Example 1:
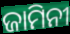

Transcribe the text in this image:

ଜାମିନୀ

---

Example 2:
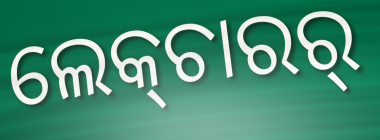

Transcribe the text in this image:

ଲେକ୍‍ଚାରର୍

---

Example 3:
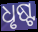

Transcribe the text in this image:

ଧୃଷ୍ଟ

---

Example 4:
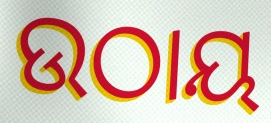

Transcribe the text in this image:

ଉଠାୟ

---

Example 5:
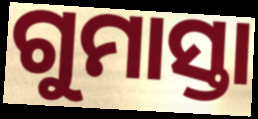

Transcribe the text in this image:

ଗୁମାସ୍ତା